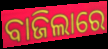
ବାଜିଲାରେ